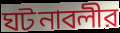
ঘটনাবলীর